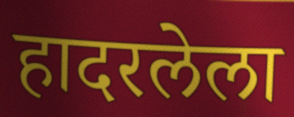
हादरलेला